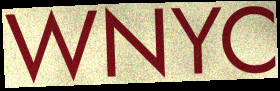
WNYC